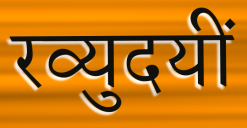
रव्युदयीं